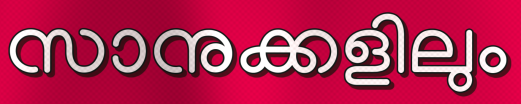
സാനുക്കളിലും